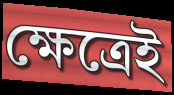
ক্ষেত্রেই